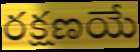
రక్షణయే